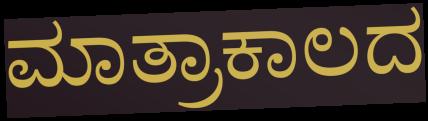
ಮಾತ್ರಾಕಾಲದ